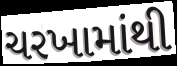
ચરખામાંથી